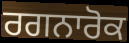
ਰਗਨਾਰੋਕ